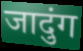
जादुंग